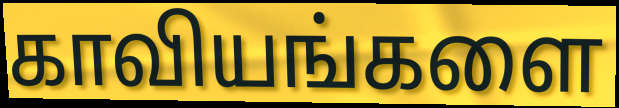
காவியங்களை